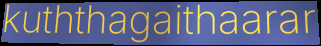
kuththagaithaarar